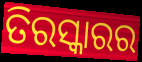
ତିରସ୍କାରର